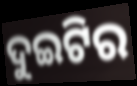
ଦୁଇଟିର